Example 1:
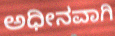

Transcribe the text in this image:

ಅಧೀನವಾಗಿ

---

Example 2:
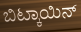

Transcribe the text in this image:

ಬಿಟ್ಕಾಯಿನ್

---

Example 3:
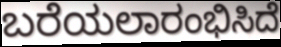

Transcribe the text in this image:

ಬರೆಯಲಾರಂಭಿಸಿದೆ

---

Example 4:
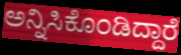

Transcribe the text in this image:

ಅನ್ನಿಸಿಕೊಂಡಿದ್ದಾರೆ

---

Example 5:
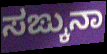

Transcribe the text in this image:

ಸಙ್ಕುನಾ